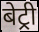
बेट्री